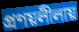
প্রণয়লীলায়